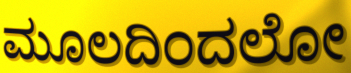
ಮೂಲದಿಂದಲೋ